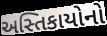
અસ્તિકાયોનો